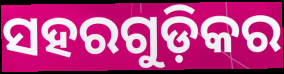
ସହରଗୁଡ଼ିକର